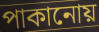
পাকানোয়